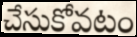
చేసుకోవటం